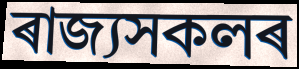
ৰাজ্যসকলৰ